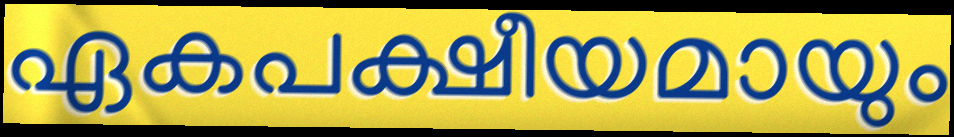
ഏകപക്ഷീയമായും